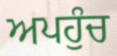
ਅਪਹੁੰਚ